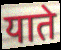
याते